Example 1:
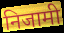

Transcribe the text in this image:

निजामी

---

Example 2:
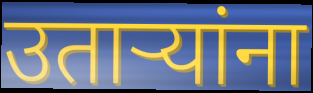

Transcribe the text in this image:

उताऱ्यांना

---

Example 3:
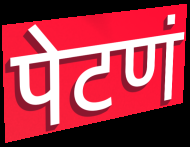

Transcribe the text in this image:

पेटणं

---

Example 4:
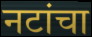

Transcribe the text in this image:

नटांचा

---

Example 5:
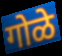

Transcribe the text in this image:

गोळे